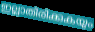
ഇല്ലാതിരിക്കുകയും